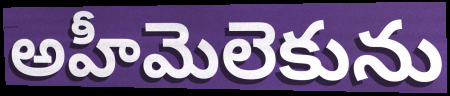
అహీమెలెకును